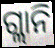
ଗ୍ଲାନି